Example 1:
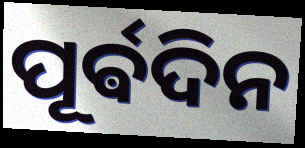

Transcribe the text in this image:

ପୂର୍ଵଦିନ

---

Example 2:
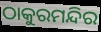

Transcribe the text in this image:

ଠାକୁରମନ୍ଦିର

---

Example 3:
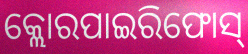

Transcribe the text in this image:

କ୍ଲୋରପାଇରିଫୋସ୍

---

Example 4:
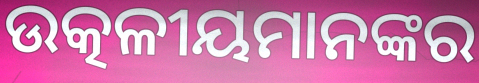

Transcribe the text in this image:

ଉତ୍କଳୀୟମାନଙ୍କର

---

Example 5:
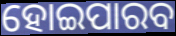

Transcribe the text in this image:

ହୋଇପାରବ